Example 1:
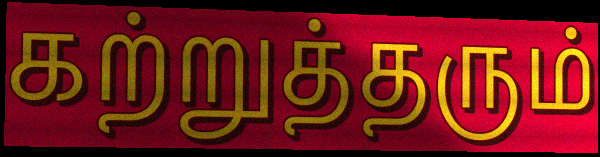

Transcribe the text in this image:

கற்றுத்தரும்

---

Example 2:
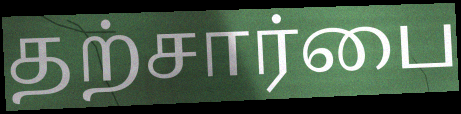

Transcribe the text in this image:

தற்சார்பை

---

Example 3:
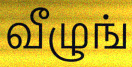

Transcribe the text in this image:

வீழுங்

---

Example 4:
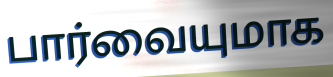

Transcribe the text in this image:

பார்வையுமாக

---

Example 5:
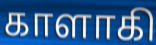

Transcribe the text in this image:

காளாகி